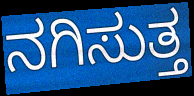
ನಗಿಸುತ್ತ